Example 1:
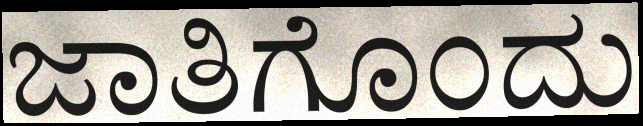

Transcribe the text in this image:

ಜಾತಿಗೊಂದು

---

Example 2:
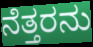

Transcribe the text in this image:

ನೆತ್ತರನು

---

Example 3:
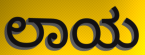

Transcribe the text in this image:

ಲಾಯ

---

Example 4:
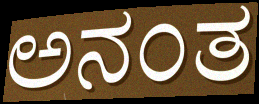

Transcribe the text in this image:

ಅನಂತ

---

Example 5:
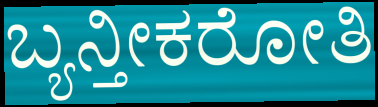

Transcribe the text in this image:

ಬ್ಯನ್ತೀಕರೋತಿ